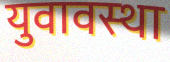
युवावस्था